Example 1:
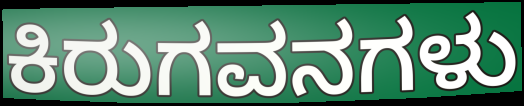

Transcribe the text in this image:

ಕಿರುಗವನಗಳು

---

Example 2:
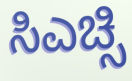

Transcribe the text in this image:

ಸಿಎಚ್ಸಿ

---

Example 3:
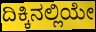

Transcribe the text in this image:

ದಿಕ್ಕಿನಲ್ಲಿಯೇ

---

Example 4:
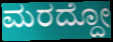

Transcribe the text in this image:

ಮರದ್ದೋ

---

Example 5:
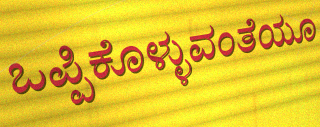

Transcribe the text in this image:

ಒಪ್ಪಿಕೊಳ್ಳುವಂತೆಯೂ